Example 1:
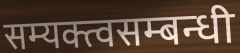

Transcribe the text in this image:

सम्यक्त्वसम्बन्धी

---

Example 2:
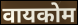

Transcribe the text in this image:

वायकोम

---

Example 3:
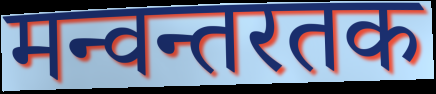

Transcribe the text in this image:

मन्वन्तरतक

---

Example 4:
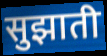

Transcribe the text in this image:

सुझाती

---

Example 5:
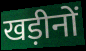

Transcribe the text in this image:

खड़ीनों